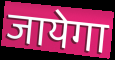
जायेगा